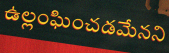
ఉల్లంఘించడమేనని